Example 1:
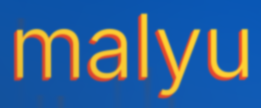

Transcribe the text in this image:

malyu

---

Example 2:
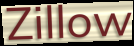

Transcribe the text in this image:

Zillow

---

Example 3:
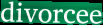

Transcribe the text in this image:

divorcee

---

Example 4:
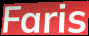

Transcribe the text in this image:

Faris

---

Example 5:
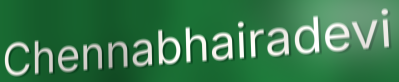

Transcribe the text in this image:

Chennabhairadevi